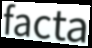
facta